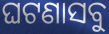
ଘଟଣାସବୁ